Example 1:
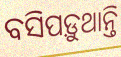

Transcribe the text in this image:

ବସିପଡ଼ୁଥାନ୍ତି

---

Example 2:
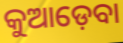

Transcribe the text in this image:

କୁଆଡ଼େବା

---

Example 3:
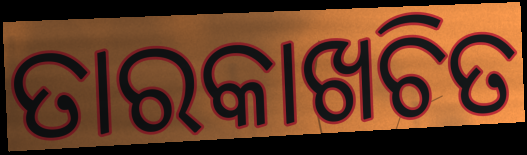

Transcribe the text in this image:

ତାରକାଖଚିତ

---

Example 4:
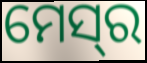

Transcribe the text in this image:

ମେସ୍‌ର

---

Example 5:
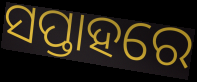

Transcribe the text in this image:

ସପ୍ତାହରେ